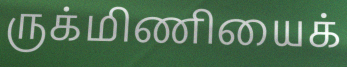
ருக்மிணியைக்